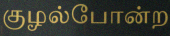
குழல்போன்ற